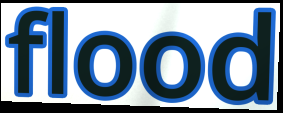
flood